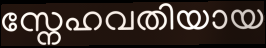
സ്നേഹവതിയായ